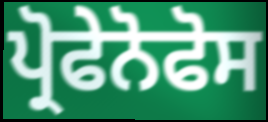
ਪ੍ਰੋਫੇਨੋਫੋਸ